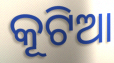
କୂଟିଆ